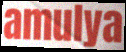
amulya